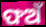
ଫଅଁ